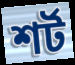
শর্ট